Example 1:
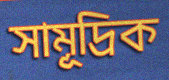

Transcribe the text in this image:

সামূদ্ৰিক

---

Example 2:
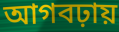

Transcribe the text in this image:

আগবঢ়ায়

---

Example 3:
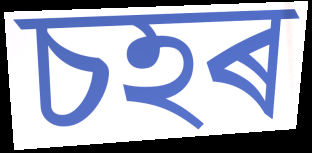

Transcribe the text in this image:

চহৰ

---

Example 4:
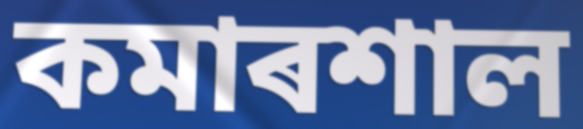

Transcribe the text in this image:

কমাৰশাল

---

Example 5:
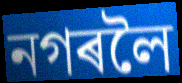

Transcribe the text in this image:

নগৰলৈ